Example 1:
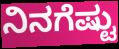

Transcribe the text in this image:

ನಿನಗೆಷ್ಟು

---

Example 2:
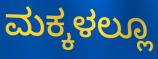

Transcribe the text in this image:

ಮಕ್ಕಳಲ್ಲೂ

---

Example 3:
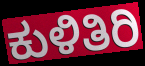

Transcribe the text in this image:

ಕುಳಿತಿರಿ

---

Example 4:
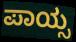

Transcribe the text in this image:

ಪಾಯ್ಸ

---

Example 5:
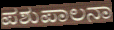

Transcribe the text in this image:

ಪಶುಪಾಲನಾ